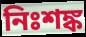
নিঃশঙ্ক